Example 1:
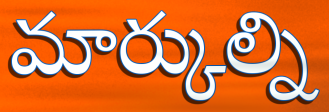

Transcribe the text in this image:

మార్కుల్ని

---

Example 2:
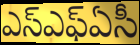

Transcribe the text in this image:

ఎస్ఎఫ్ఏసీ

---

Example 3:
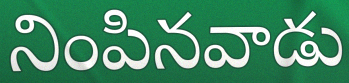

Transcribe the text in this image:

నింపినవాడు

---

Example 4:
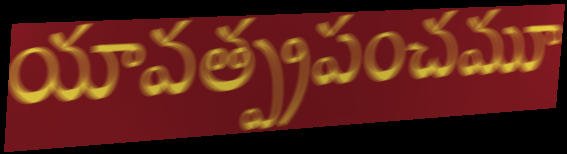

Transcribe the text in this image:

యావత్ప్రపంచమూ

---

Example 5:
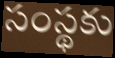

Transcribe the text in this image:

సంస్థకు